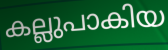
കല്ലുപാകിയ